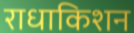
राधाकिशन